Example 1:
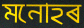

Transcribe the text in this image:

মনোহৰ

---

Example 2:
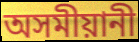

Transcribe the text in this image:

অসমীয়ানী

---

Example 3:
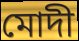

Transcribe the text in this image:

মোদী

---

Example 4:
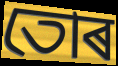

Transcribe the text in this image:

তোৰ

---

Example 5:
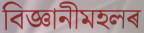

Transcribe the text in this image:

বিজ্ঞানীমহলৰ